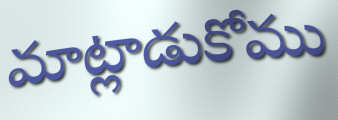
మాట్లాడుకోము